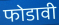
फोडावी